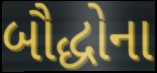
બૌદ્ધોના